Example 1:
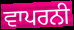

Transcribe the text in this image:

ਵਾਪਰਨੀ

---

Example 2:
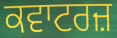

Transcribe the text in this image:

ਕਵਾਟਰਜ਼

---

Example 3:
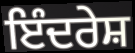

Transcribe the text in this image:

ਇੰਦਰੇਸ਼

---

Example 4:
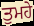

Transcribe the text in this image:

ਤੁਮਹੇ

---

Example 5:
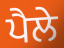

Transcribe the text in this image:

ਪੈਲੇ